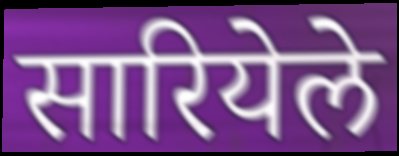
सारियेले